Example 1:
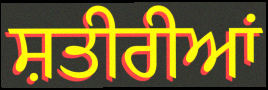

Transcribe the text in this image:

ਸ਼ਤੀਰੀਆਂ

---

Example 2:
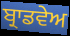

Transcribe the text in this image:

ਬ੍ਰਾਡਵੇਅ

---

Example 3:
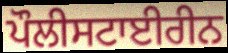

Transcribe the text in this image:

ਪੌਲੀਸਟਾਈਰੀਨ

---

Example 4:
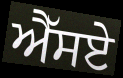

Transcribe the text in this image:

ਐੱਸਏ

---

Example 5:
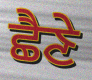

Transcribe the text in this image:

ਛੈਣੇ